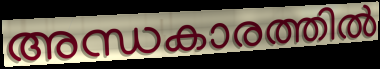
അന്ധകാരത്തിൽ